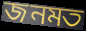
জনমত